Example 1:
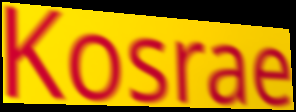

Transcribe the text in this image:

Kosrae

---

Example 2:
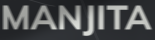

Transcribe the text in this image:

MANJITA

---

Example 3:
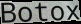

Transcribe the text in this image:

Botox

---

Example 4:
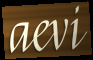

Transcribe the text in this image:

aevi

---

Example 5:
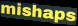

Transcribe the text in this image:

mishaps